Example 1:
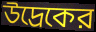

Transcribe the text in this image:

উদ্রেকের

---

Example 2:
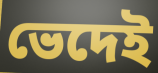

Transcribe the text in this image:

ভেদেই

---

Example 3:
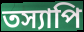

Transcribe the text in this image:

তস্যাপি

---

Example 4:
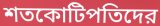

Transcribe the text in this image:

শতকোটিপতিদের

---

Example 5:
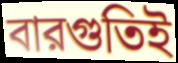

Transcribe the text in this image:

বারগুতিই